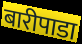
बारीपाडा